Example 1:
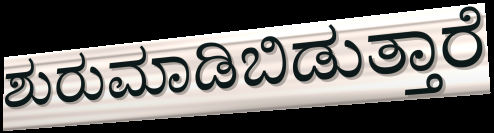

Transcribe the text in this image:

ಶುರುಮಾಡಿಬಿಡುತ್ತಾರೆ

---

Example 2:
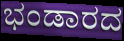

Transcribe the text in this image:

ಭಂಡಾರದ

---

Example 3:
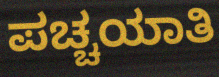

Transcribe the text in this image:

ಪಚ್ಚಯಾತಿ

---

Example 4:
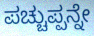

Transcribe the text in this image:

ಪಚ್ಚುಪ್ಪನ್ನೇ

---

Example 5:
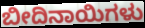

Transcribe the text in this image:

ಬೀದಿನಾಯಿಗಳು